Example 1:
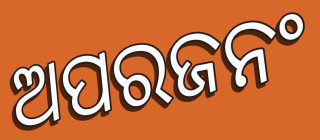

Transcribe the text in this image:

ଅପରଜନଂ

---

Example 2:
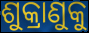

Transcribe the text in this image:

ଶୁକ୍ରାଣୁକୁ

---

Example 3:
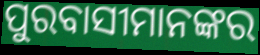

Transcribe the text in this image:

ପୁରବାସୀମାନଙ୍କର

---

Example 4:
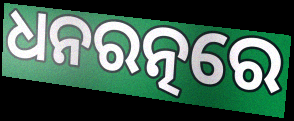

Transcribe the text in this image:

ଧନରତ୍ନରେ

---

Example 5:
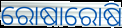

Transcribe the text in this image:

ରୋଷାରୋଷି